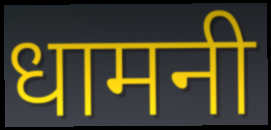
धामनी